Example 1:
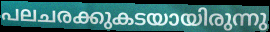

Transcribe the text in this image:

പലചരക്കുകടയായിരുന്നു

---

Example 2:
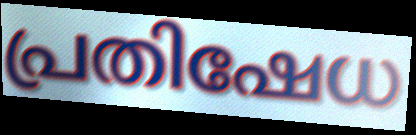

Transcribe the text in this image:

പ്രതിഷേധ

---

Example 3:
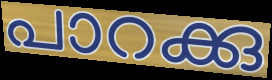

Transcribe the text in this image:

പാറക്കു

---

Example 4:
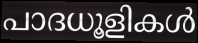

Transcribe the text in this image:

പാദധൂളികൾ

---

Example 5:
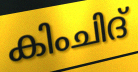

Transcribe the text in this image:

കിംചിദ്